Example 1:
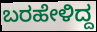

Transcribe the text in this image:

ಬರಹೇಳಿದ್ದ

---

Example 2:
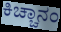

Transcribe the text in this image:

ಕಿಚ್ಚಾನಂ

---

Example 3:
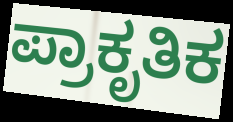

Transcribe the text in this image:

ಪ್ರಾಕೃತಿಕ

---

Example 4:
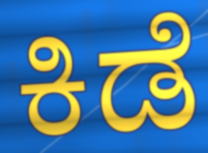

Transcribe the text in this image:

ಕಿಡೆ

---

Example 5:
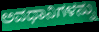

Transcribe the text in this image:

ಅವಧಾನಿಗಳನ್ನು